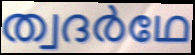
ത്വദർഥേ